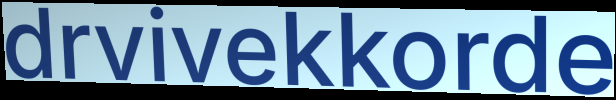
drvivekkorde